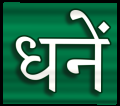
धनें